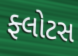
ફ્લોટસ